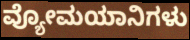
ವ್ಯೋಮಯಾನಿಗಳು